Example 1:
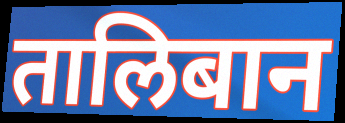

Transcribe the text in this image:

तालिबान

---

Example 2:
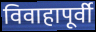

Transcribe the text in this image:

विवाहापूर्वी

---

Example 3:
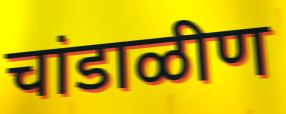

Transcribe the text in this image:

चांडाळीण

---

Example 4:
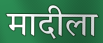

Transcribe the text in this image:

मादीला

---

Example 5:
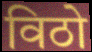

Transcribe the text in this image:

विठो